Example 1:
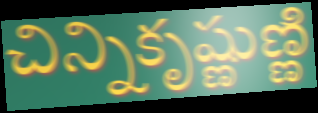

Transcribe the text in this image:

చిన్నికృష్ణుణ్ణి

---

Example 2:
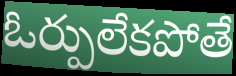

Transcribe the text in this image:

ఓర్పులేకపోతే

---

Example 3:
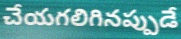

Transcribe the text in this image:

చేయగలిగినప్పుడే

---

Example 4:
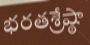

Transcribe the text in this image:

భరతశ్రేష్ఠా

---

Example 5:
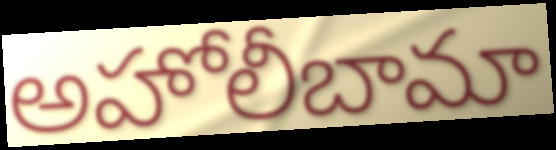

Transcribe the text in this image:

అహోలీబామా